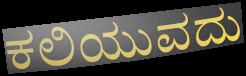
ಕಲಿಯುವದು